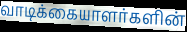
வாடிக்கையாளர்களின்